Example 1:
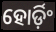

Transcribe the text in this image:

ହୋର୍ଡ଼ିଂ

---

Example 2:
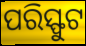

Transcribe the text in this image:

ପରିସ୍ଫୁଟ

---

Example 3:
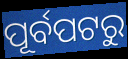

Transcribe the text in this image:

ପୂର୍ବପଟରୁ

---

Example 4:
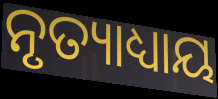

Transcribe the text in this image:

ନୃତ୍ୟାଧ୍ୟାୟ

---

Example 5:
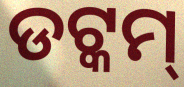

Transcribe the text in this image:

ଡଟ୍କମ୍